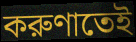
করুণাতেই